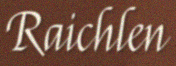
Raichlen